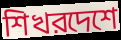
শিখরদেশে